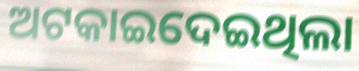
ଅଟକାଇଦେଇଥିଲା